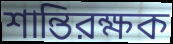
শান্তিরক্ষক